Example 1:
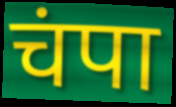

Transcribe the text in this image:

चंपा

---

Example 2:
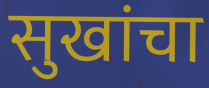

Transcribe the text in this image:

सुखांचा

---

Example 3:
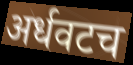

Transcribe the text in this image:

अर्धवटच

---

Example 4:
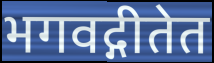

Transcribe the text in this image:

भगवद्गीतेत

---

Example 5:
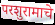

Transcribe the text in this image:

परशुरामाचे